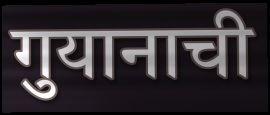
गुयानाची